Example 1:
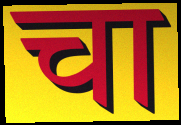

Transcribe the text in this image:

चा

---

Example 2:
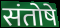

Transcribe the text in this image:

संतोषे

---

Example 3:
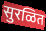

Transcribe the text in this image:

सुरळित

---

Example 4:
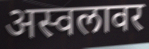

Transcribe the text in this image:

अस्वलावर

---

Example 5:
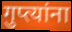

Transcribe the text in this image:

गुप्त्यांना